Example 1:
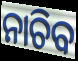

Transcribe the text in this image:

ନାଚିବ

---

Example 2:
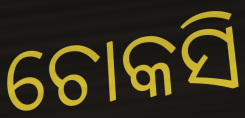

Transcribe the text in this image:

ଚୋକସି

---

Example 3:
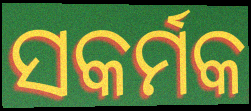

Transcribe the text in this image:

ସକର୍ମକ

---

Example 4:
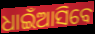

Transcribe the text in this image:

ଧାଇଁଆସିବେ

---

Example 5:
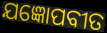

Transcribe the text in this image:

ଯଜ୍ଞୋପବୀତ